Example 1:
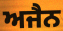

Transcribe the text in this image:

ਅਜੈਨ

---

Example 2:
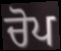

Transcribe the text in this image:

ਚੋਪ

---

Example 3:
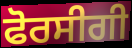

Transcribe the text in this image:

ਫੋਰਸੀਗੀ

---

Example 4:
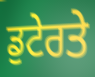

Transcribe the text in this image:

ਡੁਟੇਰਤੇ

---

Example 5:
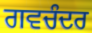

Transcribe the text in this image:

ਗਵਚੰਦਰ